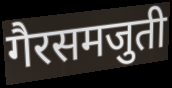
गैरसमजुती